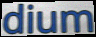
dium